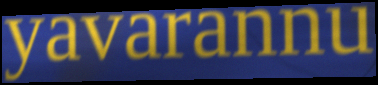
yavarannu